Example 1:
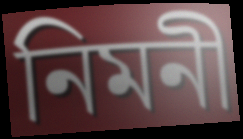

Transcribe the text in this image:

নিমনী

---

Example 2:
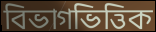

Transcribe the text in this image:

বিভাগভিত্তিক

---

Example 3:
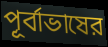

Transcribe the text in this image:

পূর্বাভাষের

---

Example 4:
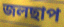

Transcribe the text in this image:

জলছাপ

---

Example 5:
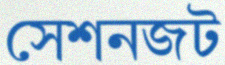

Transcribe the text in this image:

সেশনজট